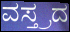
ವಸ್ತ್ರದ